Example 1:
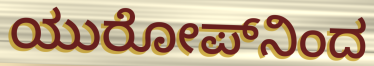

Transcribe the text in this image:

ಯುರೋಪ್‌ನಿಂದ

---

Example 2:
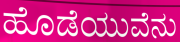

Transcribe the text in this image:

ಹೊಡೆಯುವೆನು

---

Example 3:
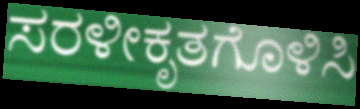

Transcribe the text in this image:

ಸರಳೀಕೃತಗೊಳಿಸಿ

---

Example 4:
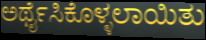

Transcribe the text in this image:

ಅರ್ಥೈಸಿಕೊಳ್ಳಲಾಯಿತು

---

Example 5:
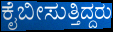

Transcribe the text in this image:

ಕೈಬೀಸುತ್ತಿದ್ದರು